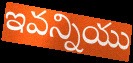
ఇవన్నియు